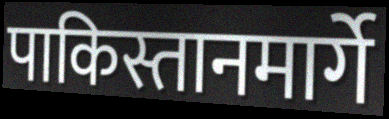
पाकिस्तानमार्गे